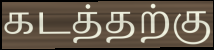
கடத்தற்கு